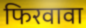
फिरवावा